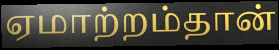
ஏமாற்றம்தான்